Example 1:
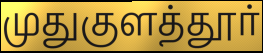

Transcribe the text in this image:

முதுகுளத்தூர்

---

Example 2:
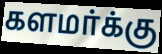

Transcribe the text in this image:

களமர்க்கு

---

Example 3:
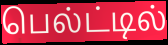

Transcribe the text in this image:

பெல்ட்டில்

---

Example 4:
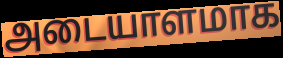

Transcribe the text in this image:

அடையாளமாக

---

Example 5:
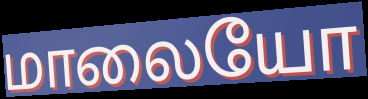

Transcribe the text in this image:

மாலையோ